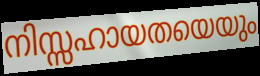
നിസ്സഹായതയെയും